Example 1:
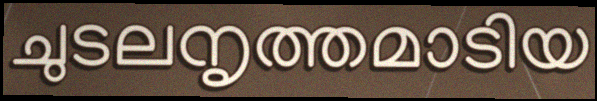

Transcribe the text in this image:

ചുടലനൃത്തമാടിയ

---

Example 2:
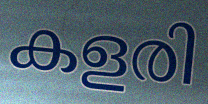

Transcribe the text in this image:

കളരി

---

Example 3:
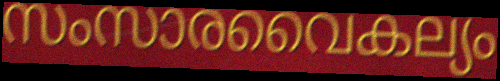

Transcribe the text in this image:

സംസാരവൈകല്യം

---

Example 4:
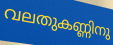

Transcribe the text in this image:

വലതുകണ്ണിനു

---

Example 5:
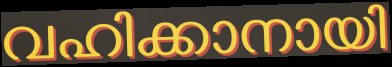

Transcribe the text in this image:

വഹിക്കാനായി